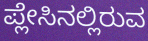
ಪ್ಲೇಸಿನಲ್ಲಿರುವ